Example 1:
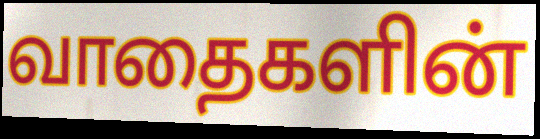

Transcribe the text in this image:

வாதைகளின்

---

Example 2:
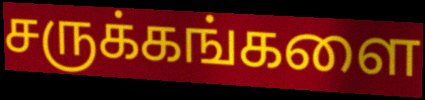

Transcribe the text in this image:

சருக்கங்களை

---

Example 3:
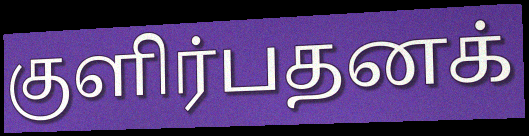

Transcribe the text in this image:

குளிர்பதனக்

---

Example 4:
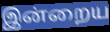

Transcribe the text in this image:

இன்றைய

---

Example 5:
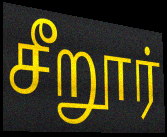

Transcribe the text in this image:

சீறூர்